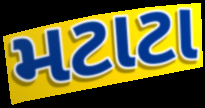
મટાટા